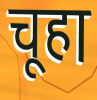
चूहा